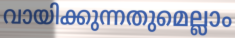
വായിക്കുന്നതുമെല്ലാം